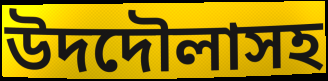
উদদৌলাসহ